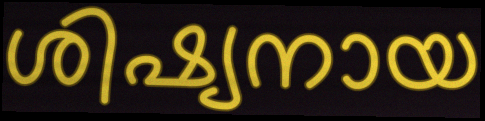
ശിഷ്യനായ